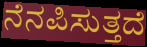
ನೆನಪಿಸುತ್ತದೆ